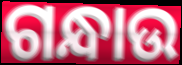
ଗନ୍ଧାଉ